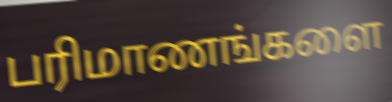
பரிமாணங்களை